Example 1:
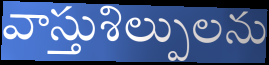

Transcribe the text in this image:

వాస్తుశిల్పులను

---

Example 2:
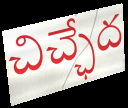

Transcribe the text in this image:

చిచ్ఛేద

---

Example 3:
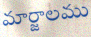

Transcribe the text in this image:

మార్జాలము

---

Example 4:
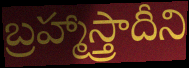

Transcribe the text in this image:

బ్రహ్మాస్త్రాదీని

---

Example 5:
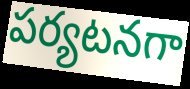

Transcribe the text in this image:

పర్యటనగా